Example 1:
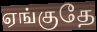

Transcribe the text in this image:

ஏங்குதே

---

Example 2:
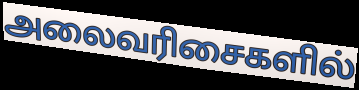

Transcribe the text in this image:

அலைவரிசைகளில்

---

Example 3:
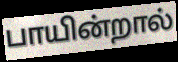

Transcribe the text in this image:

பாயின்றால்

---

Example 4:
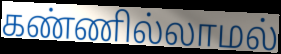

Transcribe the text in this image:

கண்ணில்லாமல்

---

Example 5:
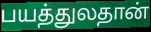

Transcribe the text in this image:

பயத்துலதான்